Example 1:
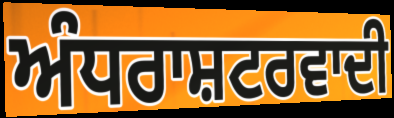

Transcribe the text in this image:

ਅੰਧਰਾਸ਼ਟਰਵਾਦੀ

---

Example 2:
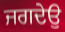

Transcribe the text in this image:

ਜਗਦੇਉ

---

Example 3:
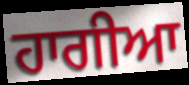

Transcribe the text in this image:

ਹਾਗੀਆ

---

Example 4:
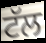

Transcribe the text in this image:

ਟੱਲ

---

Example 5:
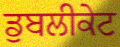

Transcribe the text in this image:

ਡੁਬਲੀਕੇਟ